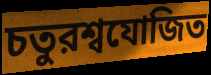
চতুরশ্বযোজিত